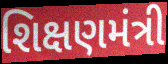
શિક્ષણમંત્રી